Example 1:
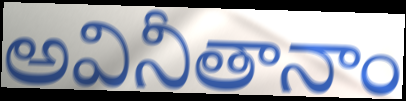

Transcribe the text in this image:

అవినీతానాం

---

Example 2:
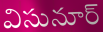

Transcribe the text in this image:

విసునూర్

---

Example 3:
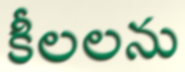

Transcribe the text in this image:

కీలలను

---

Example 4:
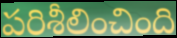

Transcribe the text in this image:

పరిశీలించింది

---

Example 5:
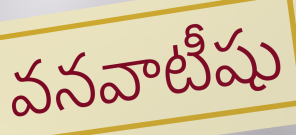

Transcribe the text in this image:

వనవాటీషు